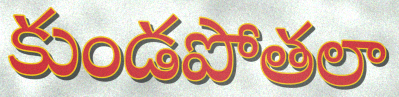
కుండపోతలా